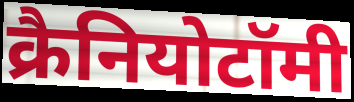
क्रैनियोटॉमी